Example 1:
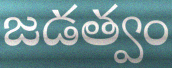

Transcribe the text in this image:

జడత్వం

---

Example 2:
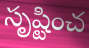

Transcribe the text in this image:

సృష్టించ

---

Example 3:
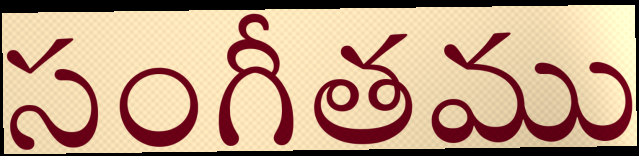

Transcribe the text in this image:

సంగీతము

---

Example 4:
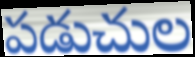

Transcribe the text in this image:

పడుచుల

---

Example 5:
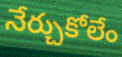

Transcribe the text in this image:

నేర్చుకోలేం